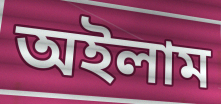
অইলাম